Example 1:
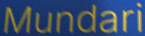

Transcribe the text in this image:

Mundari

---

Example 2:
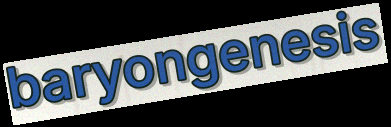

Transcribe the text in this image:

baryongenesis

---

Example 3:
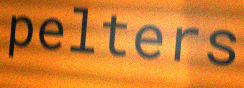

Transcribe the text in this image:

pelters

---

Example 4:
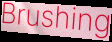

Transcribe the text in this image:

Brushing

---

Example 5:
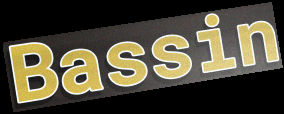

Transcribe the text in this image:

Bassin